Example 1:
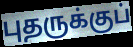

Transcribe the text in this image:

புதருக்குப்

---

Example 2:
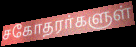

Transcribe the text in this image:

சகோதரர்களுள்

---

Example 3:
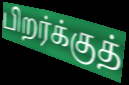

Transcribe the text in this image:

பிறர்க்குத்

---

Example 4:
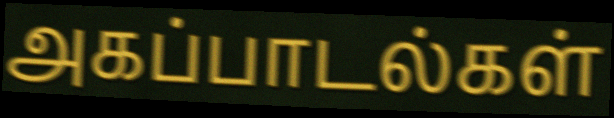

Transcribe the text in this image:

அகப்பாடல்கள்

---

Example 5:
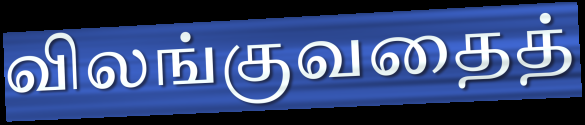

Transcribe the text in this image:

விலங்குவதைத்